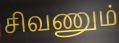
சிவணும்